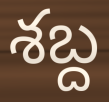
శబ్ద